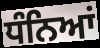
ਧੰਨਿਆਂ